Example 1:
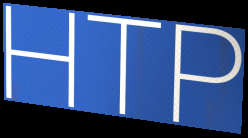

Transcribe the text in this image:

HTP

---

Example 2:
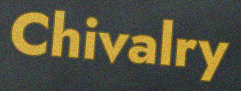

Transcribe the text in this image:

Chivalry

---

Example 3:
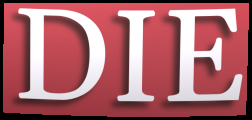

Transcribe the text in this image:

DIE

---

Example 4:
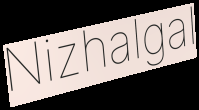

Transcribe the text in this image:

Nizhalgal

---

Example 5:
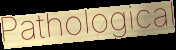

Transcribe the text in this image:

Pathological